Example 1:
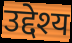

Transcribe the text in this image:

उद्देश्‍य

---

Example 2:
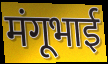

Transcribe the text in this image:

मंगूभाई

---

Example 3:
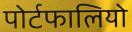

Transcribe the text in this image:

पोर्टफालियो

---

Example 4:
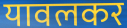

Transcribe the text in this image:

यावलकर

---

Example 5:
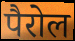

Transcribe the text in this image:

पैरोल